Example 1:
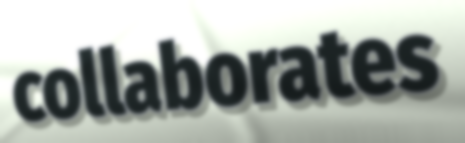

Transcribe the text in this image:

collaborates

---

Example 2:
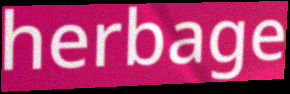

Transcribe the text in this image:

herbage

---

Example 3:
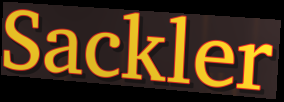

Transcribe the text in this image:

Sackler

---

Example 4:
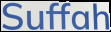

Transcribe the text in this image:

Suffah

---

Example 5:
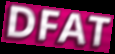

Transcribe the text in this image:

DFAT